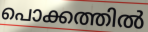
പൊക്കത്തിൽ